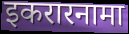
इकरारनामा